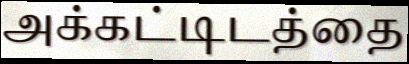
அக்கட்டிடத்தை